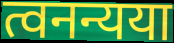
त्वनन्यया